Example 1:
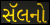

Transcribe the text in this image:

સૅલનો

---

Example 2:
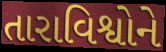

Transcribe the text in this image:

તારાવિશ્વોને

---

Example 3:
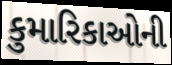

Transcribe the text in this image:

કુમારિકાઓની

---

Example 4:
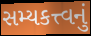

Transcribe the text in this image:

સમ્યકત્ત્વનું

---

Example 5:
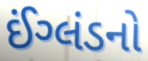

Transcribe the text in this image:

ઈંગ્લંડનો